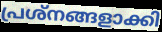
പ്രശ്നങ്ങളാക്കി